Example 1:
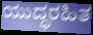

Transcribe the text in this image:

ಯುದ್ಧರಹಿತ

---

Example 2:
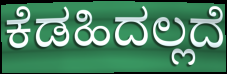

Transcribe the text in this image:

ಕೆಡಹಿದಲ್ಲದೆ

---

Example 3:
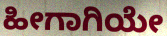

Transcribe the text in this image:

ಹೀಗಾಗಿಯೇ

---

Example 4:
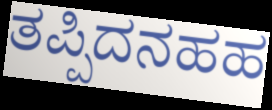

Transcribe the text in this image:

ತಪ್ಪಿದನಹಹ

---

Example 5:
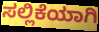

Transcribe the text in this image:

ಸಲ್ಲಿಕೆಯಾಗಿ